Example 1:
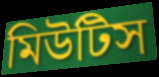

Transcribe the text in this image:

মিউটিস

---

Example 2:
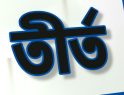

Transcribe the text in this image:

তীর্ত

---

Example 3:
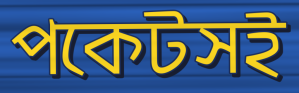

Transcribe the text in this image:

পকেটসই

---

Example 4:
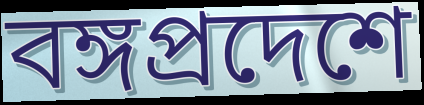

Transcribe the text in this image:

বঙ্গপ্রদেশে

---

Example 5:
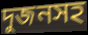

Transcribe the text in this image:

দুজনসহ